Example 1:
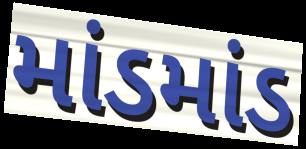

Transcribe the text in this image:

માંડમાંડ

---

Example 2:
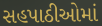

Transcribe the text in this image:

સહપાઠીઓમાં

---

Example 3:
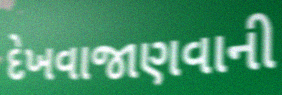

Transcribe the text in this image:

દેખવાજાણવાની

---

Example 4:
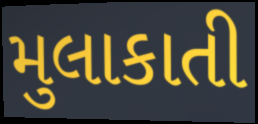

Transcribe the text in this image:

મુલાકાતી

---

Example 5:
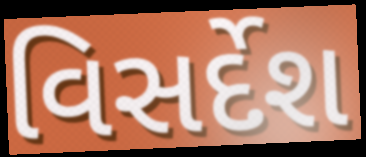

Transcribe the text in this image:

વિસર્દેશ